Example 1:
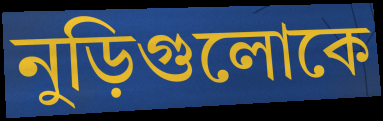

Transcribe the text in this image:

নুড়িগুলোকে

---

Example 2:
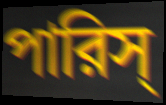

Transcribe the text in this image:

পারিস্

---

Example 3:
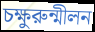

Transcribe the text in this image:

চক্ষুরুন্মীলন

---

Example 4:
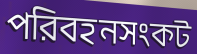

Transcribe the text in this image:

পরিবহনসংকট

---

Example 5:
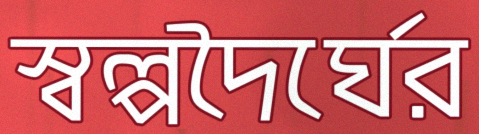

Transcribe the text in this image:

স্বল্পদৈর্ঘের